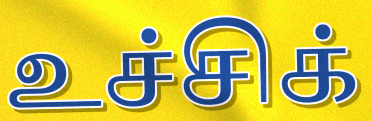
உச்சிக்